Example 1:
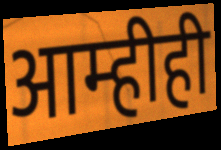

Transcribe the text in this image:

आम्हीही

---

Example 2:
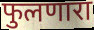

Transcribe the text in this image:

फुलणारा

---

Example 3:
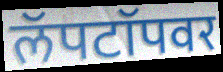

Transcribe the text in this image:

लॅपटॉपवर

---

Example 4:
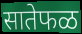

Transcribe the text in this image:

सातेफळ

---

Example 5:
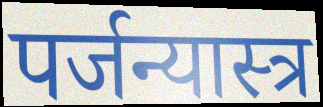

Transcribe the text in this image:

पर्जन्यास्त्र